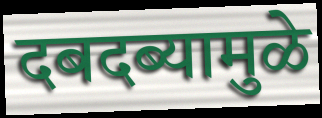
दबदब्यामुळे